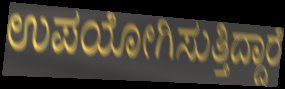
ಉಪಯೋಗಿಸುತ್ತಿದ್ದಾರೆ